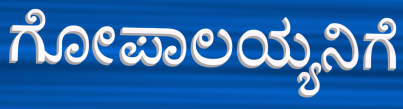
ಗೋಪಾಲಯ್ಯನಿಗೆ